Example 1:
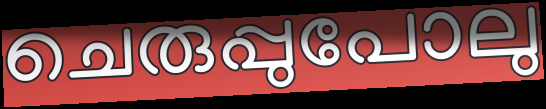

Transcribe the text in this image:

ചെരുപ്പുപോലു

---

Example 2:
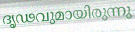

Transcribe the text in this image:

ദൃഢവുമായിരുന്നു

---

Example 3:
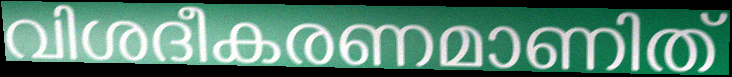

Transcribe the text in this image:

വിശദീകരണമാണിത്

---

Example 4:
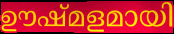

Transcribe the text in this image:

ഊഷ്മളമായി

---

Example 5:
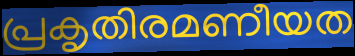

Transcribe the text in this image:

പ്രകൃതിരമണീയത